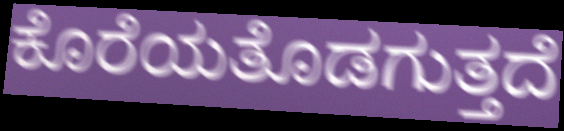
ಕೊರೆಯತೊಡಗುತ್ತದೆ